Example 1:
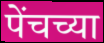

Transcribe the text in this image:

पेंचच्या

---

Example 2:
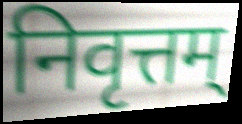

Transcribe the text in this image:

निवृत्तम्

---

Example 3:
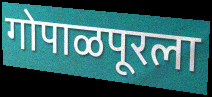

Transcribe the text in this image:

गोपाळपूरला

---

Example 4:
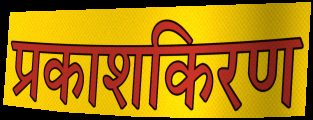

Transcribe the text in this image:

प्रकाशकिरण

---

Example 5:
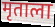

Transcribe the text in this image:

मृताला